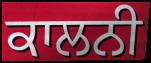
ਕਾਲਨੀ